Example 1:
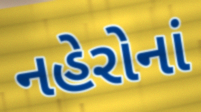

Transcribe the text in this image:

નહેરોનાં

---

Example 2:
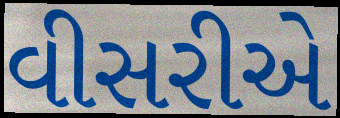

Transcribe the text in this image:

વીસરીએ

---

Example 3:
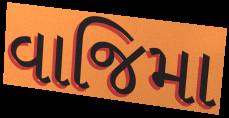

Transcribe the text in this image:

વાજિમા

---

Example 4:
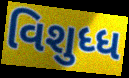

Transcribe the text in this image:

વિશુધ્ધ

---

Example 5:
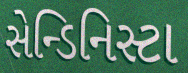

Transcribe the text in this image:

સેન્ડિનિસ્ટા